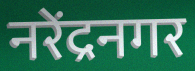
नरेंद्रनगर